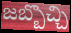
జబ్బొచ్చి